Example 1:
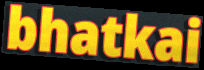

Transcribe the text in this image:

bhatkai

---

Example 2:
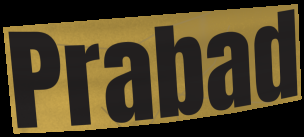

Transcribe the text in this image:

Prabad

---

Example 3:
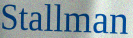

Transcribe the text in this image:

Stallman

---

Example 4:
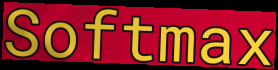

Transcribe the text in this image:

Softmax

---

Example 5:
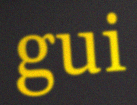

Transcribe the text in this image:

gui